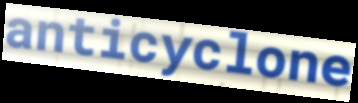
anticyclone